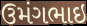
ઉમંગભાઇ